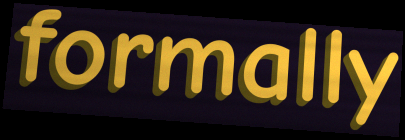
formally